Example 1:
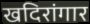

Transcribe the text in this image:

खदिरांगार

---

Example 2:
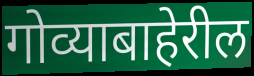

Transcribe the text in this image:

गोव्याबाहेरील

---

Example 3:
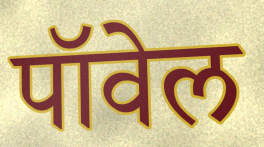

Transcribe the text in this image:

पॉवेल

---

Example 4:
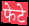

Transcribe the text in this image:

फेटे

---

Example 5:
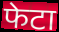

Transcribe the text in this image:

फेटा